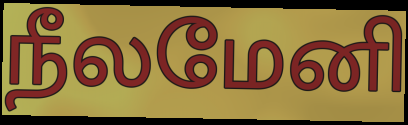
நீலமேனி